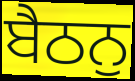
ਬੈਠਨੁ